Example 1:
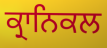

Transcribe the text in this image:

ਕ੍ਰਾਨਿਕਲ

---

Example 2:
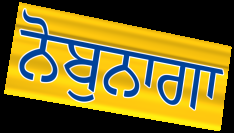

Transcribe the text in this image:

ਨੋਬੁਨਾਗਾ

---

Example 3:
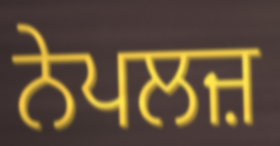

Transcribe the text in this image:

ਨੇਪਲਜ਼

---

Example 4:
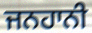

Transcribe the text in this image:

ਜਨਹਾਨੀ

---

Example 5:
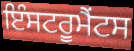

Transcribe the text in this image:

ਇੰਸਟਰੂਮੈਂਟਸ